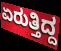
ಏರುತ್ತಿದ್ದ